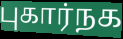
புகார்நக